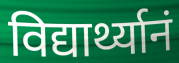
विद्यार्थ्यानं